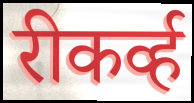
रीकर्व्ह